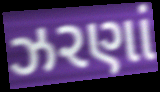
ઝરણાં